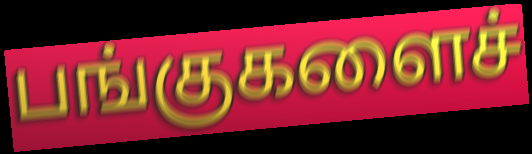
பங்குகளைச்